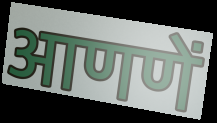
आणणें